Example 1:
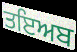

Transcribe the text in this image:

ਤਇਅਬ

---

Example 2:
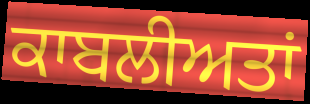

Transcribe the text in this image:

ਕਾਬਲੀਅਤਾਂ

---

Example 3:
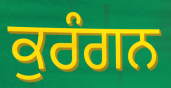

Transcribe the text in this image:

ਕੁਰੰਗਨ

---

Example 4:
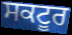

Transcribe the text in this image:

ਸਕਟੂਰ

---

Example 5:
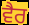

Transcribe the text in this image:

ਵੈਰ